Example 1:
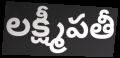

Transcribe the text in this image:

లక్ష్మీపతీ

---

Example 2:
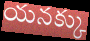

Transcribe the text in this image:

యనక్కు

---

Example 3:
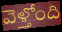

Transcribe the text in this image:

వెళ్తోంది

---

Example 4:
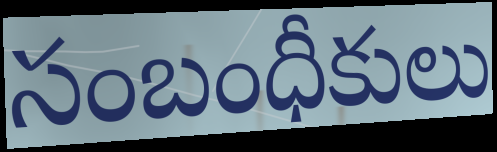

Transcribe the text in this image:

సంబంధీకులు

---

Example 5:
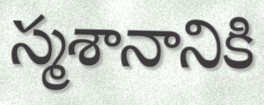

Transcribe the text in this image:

స్మశానానికి